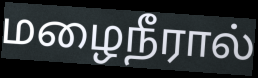
மழைநீரால்